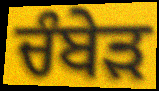
ਚੰਬੇੜ